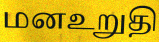
மனஉறுதி